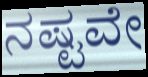
ನಷ್ಟವೇ